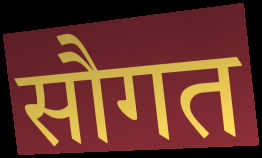
सौगत